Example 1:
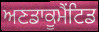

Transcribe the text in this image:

ਅਣਡਾਕੂਮੈਂਟਿਡ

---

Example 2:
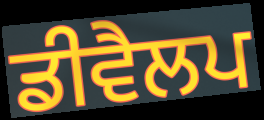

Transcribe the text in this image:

ਡੀਵੈਲਪ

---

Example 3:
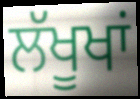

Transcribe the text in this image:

ਲੱਖੂਖਾਂ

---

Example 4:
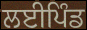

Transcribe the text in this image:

ਲਈਪਿੰਡ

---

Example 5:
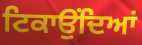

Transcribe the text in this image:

ਟਿਕਾਉਂਦਿਆਂ